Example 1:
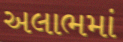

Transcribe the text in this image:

અલાભમાં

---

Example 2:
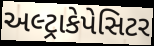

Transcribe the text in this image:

અલ્ટ્રાકેપેસિટર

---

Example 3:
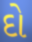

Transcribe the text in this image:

દો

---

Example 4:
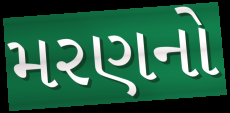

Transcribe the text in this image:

મરણનો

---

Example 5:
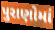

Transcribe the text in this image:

પુરાણોમાં